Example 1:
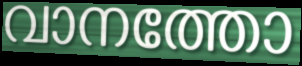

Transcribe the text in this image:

വാനത്തോ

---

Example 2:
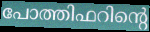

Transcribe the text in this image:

പോത്തിഫറിന്റെ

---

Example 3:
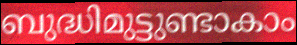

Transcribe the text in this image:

ബുദ്ധിമുട്ടുണ്ടാകാം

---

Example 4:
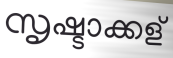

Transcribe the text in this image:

സൃഷ്ടാക്കള്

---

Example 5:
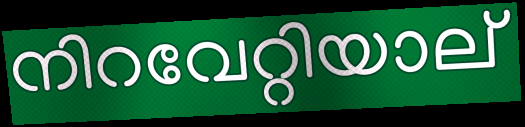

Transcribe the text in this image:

നിറവേറ്റിയാല്